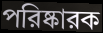
পরিষ্কারক